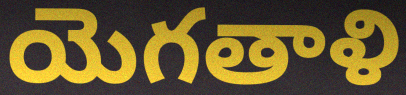
యెగతాళి